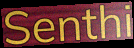
Senthi